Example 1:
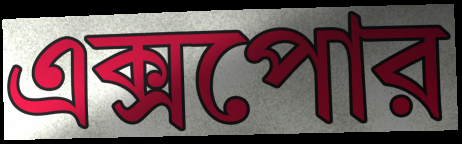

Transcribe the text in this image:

এক্সপোর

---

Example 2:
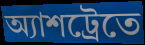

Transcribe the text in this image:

অ্যাশট্রেতে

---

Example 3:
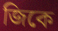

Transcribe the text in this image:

জিকে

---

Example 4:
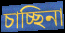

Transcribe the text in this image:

চাচ্ছিনা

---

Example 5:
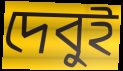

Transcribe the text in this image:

দেবুই